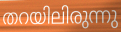
തറയിലിരുന്നു